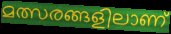
മത്സരങ്ങളിലാണ്